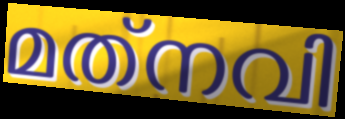
മത്‌നവി